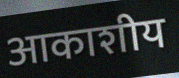
आकाशीय